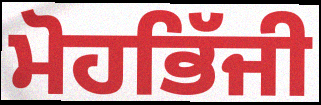
ਮੋਹਭਿੱਜੀ